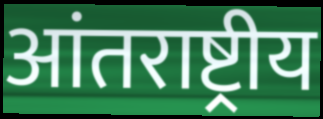
आंतराष्ट्रीय